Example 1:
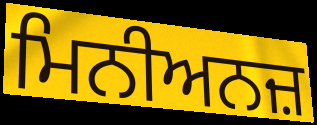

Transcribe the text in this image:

ਮਿਨੀਅਨਜ਼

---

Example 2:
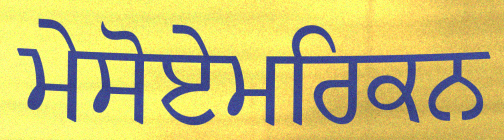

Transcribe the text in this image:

ਮੇਸੋਏਮਰਿਕਨ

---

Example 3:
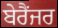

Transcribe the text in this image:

ਬੇਰੈਂਜਰ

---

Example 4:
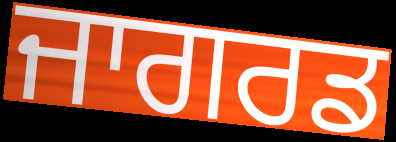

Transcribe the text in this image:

ਜਾਗਰਡ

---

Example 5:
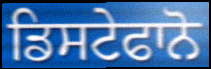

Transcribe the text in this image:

ਡਿਸਟੇਫਾਨੋ